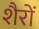
शैरों